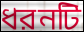
ধরনটি